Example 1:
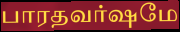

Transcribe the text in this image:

பாரதவர்ஷமே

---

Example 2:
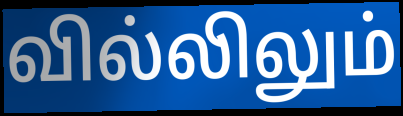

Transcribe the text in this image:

வில்லிலும்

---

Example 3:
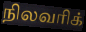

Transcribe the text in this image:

நிலவரிக்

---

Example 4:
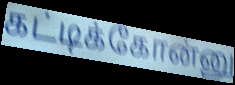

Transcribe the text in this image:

கட்டிக்கோன்னு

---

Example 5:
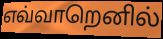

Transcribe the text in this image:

எவ்வாறெனில்